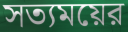
সত্যময়ের